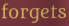
forgets